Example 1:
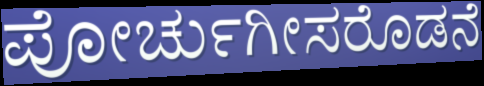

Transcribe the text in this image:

ಪೋರ್ಚುಗೀಸರೊಡನೆ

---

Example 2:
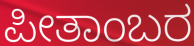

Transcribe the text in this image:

ಪೀತಾಂಬರ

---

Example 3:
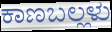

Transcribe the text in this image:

ಕಾಣಬಲ್ಲಳು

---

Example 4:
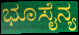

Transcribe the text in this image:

ಭೂಸೈನ್ಯ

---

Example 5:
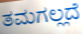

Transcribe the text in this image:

ತಮಗಲ್ಲದೆ